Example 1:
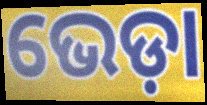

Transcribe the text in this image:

ଭେଡ଼ା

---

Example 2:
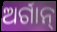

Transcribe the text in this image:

ଅର୍ଗାନ୍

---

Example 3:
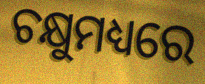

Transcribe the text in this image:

ଚକ୍ଷୁମଧ୍ଯରେ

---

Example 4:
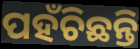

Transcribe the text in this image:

ପହଁଚିଛନ୍ତି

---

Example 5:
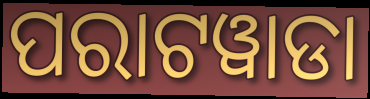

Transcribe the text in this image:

ପରାଟୱାଡା